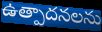
ఉత్పాదనలను